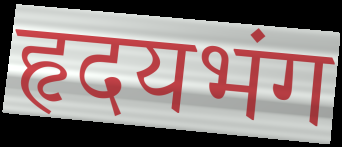
हृदयभंग